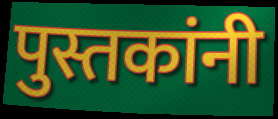
पुस्तकांनी